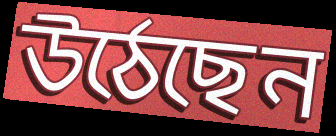
উঠেছেন